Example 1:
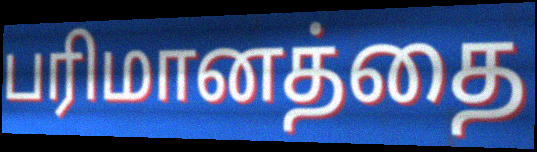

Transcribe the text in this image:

பரிமானத்தை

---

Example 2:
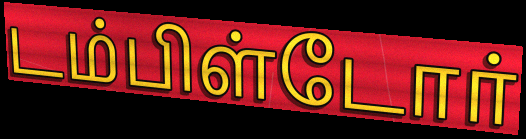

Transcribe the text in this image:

டம்பிள்டோர்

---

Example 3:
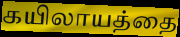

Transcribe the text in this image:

கயிலாயத்தை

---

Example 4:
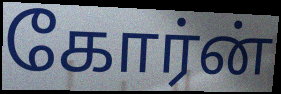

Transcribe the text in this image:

கோர்ன்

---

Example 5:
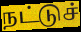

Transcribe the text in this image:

நட்டுச்